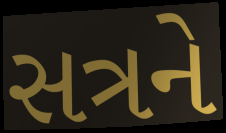
સત્રને